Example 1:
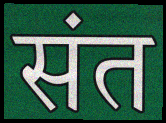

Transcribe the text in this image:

संत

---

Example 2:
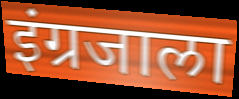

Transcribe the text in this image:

इंग्रजाला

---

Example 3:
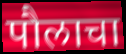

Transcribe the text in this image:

पौलाचा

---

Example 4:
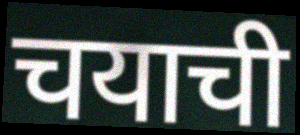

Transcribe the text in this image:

चयाची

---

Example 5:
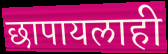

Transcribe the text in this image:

छापायलाही